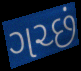
ગચ્છં